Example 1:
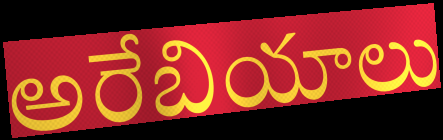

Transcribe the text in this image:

అరేబియాలు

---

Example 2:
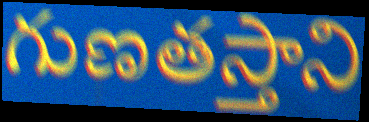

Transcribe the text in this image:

గుణతస్తాని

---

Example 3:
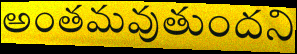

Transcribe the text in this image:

అంతమవుతుందని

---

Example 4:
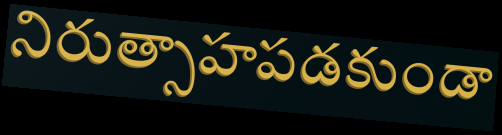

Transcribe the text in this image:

నిరుత్సాహపడకుండా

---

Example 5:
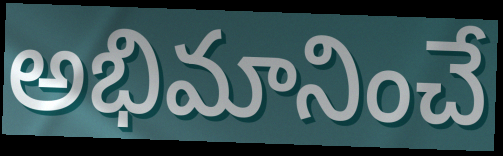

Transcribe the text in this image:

అభిమానించే